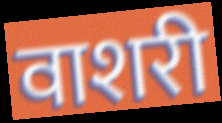
वाशरी